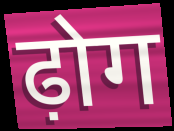
ढ़ोग